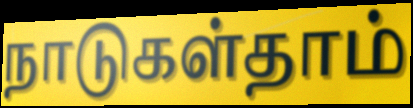
நாடுகள்தாம்